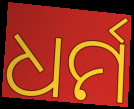
ଧର୍ମ